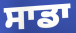
ਸਾਡਾ